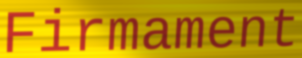
Firmament